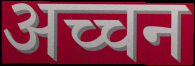
अच्चन